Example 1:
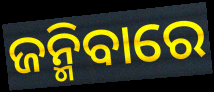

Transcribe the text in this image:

ଜନ୍ମିବାରେ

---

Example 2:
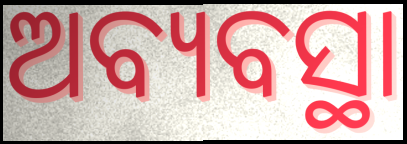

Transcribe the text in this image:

ଅବ୍ୟବସ୍ଥା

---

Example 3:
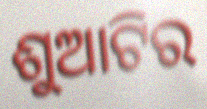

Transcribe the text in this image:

ଶୁଆଟିର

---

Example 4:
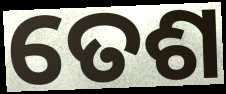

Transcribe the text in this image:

ତେଶ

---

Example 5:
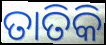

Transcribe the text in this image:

ତାତିକି